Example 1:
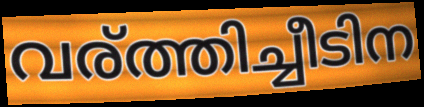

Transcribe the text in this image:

വര്ത്തിച്ചീടിന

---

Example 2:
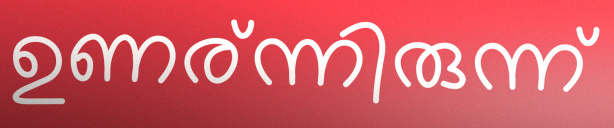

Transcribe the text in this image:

ഉണര്ന്നിരുന്ന്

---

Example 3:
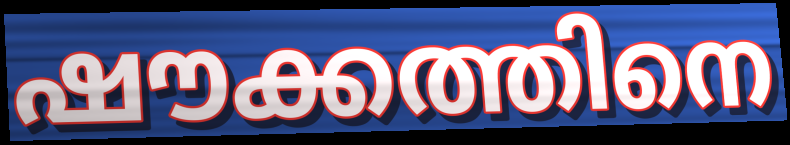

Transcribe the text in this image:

ഷൗക്കത്തിനെ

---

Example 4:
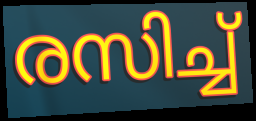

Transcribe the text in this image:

രസിച്ച്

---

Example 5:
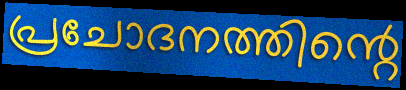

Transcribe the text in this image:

പ്രചോദനത്തിന്റെ